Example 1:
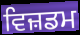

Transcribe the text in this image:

ਵਿਜ਼ਡਮ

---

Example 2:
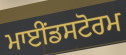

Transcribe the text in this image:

ਮਾਈਂਡਸਟੋਰਮ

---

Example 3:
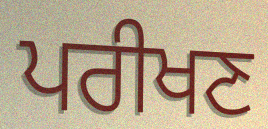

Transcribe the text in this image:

ਪਰੀਖਣ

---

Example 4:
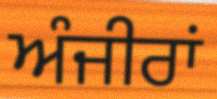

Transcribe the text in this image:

ਅੰਜੀਰਾਂ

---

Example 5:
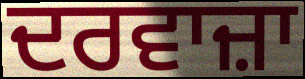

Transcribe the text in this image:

ਦਰਵਾਜ਼ਾ